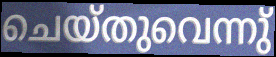
ചെയ്തുവെന്നു്